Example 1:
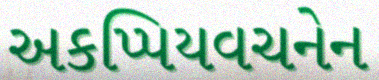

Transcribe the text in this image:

અકપ્પિયવચનેન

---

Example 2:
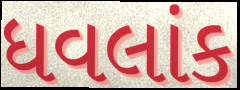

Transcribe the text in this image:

ધવલાંક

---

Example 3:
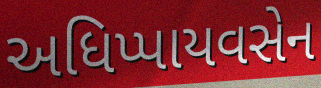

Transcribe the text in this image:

અધિપ્પાયવસેન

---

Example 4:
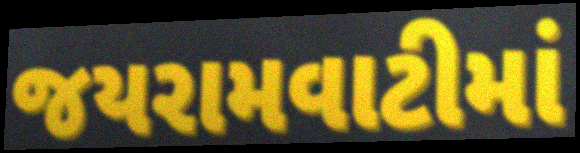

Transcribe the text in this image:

જયરામવાટીમાં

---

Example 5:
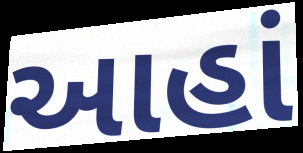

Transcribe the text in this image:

આહાં